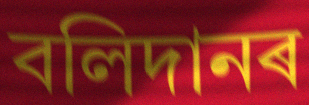
বলিদানৰ